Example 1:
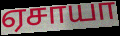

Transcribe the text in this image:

ஏசாயா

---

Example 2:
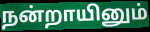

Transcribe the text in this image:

நன்றாயினும்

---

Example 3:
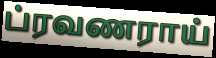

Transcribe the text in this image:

ப்ரவணராய்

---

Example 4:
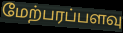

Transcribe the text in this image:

மேற்பரப்பளவு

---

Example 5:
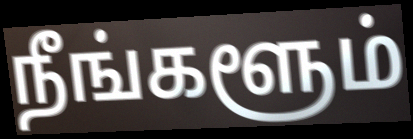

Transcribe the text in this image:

நீங்களூம்